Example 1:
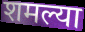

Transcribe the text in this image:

शमल्या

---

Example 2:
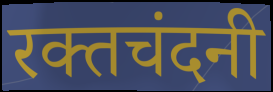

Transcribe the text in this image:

रक्तचंदनी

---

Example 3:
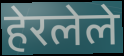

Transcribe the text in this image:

हेरलेले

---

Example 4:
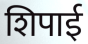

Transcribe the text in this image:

शिपाई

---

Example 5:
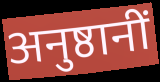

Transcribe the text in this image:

अनुष्ठानीं